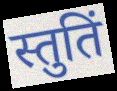
स्तुतिं